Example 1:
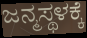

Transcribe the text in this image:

ಜನ್ಮಸ್ಥಳಕ್ಕೆ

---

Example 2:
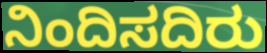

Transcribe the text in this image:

ನಿಂದಿಸದಿರು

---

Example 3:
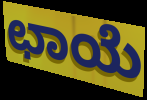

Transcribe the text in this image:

ಛಾಯೆ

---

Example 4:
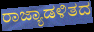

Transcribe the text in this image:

ರಾಜ್ಯಾಡಳಿತದ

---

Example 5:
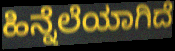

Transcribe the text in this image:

ಹಿನ್ನೆಲೆಯಾಗಿದೆ